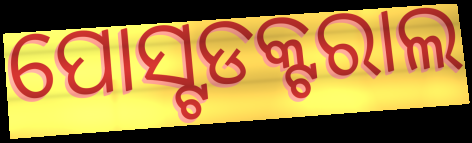
ପୋସ୍ଟଡକ୍ଟରାଲ